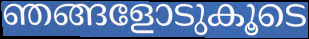
ഞങ്ങളോടുകൂടെ